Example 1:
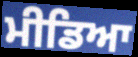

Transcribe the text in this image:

ਮੀਡਿਆ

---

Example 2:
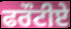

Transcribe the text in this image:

ਫਰੌਟੀਏ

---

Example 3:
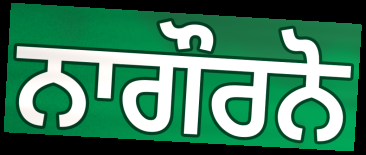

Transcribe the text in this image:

ਨਾਗੌਰਨੋ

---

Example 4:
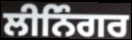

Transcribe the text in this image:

ਲੀਨਿੰਗਰ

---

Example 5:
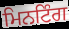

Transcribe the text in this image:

ਮਿਨਟਿੰਗ